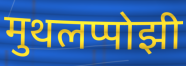
मुथलप्पोझी